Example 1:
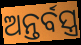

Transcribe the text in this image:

ଅନ୍ତର୍ବସ୍ତ୍ର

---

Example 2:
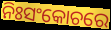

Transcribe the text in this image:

ନିଃସଂକୋଚରେ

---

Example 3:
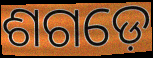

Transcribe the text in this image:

ଶଗଡ଼େ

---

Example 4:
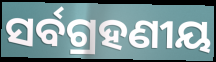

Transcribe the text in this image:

ସର୍ବଗ୍ରହଣୀୟ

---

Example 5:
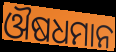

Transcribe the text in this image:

ଔଷଧମାନ